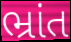
ભ્રાંત